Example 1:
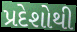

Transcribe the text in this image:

પ્રદેશોથી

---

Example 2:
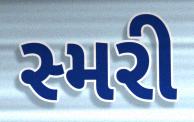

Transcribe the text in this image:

સ્મરી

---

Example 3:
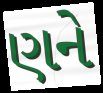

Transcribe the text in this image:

ણને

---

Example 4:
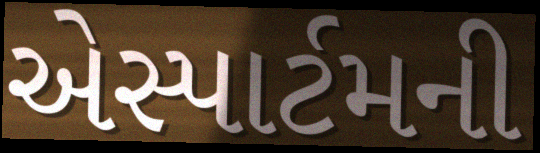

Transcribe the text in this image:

એસ્પાર્ટમની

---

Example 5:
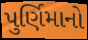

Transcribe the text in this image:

પુર્ણિમાનો